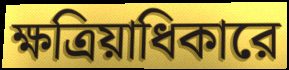
ক্ষত্রিয়াধিকারে